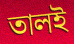
তালই